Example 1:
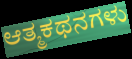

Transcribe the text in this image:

ಆತ್ಮಕಥನಗಳು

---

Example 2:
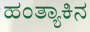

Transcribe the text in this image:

ಹಂತ್ಯಾಕಿನ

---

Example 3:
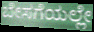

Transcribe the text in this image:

ಬೇಸಗೆಯಲ್ಲೇ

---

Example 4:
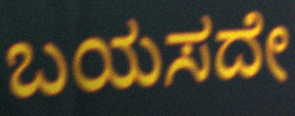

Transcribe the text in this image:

ಬಯಸದೇ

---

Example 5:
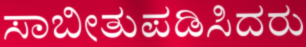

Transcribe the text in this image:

ಸಾಬೀತುಪಡಿಸಿದರು